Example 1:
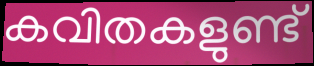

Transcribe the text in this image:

കവിതകളുണ്ട്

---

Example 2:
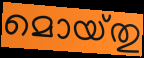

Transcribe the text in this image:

മൊയ്‌തു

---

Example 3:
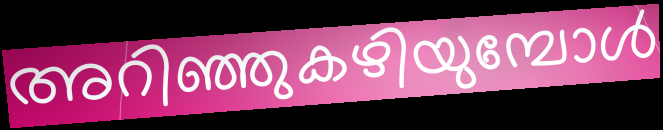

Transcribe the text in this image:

അറിഞ്ഞുകഴിയുമ്പോൾ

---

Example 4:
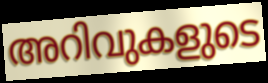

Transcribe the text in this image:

അറിവുകളുടെ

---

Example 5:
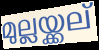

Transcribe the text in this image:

മുല്ലയ്ക്കല്